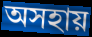
অসহায়